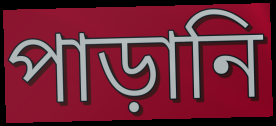
পাড়ানি